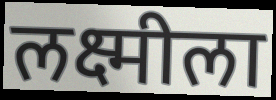
लक्ष्मीला